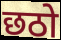
छठो